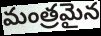
మంత్రమైన